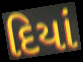
દિયાં